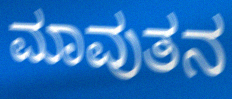
ಮಾವುತನ